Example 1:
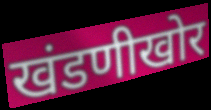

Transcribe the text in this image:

खंडणीखोर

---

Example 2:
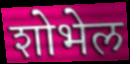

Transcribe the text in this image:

शोभेल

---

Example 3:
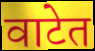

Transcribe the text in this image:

वाटेत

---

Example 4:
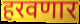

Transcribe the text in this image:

हरवणार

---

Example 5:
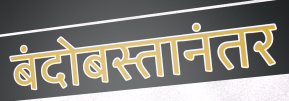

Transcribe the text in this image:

बंदोबस्तानंतर